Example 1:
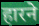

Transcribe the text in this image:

हारने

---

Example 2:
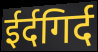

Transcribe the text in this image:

ईर्दगिर्द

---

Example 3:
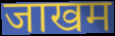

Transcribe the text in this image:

जाखम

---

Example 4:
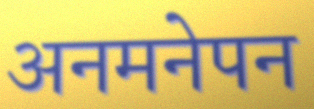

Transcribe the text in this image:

अनमनेपन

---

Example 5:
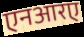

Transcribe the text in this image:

एनआरए